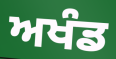
ਅਖੰਡ